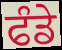
ਫੰਡੇ